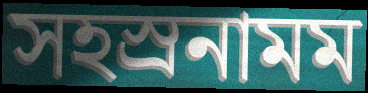
সহস্রনামম